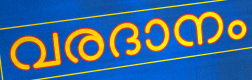
വരദാനം